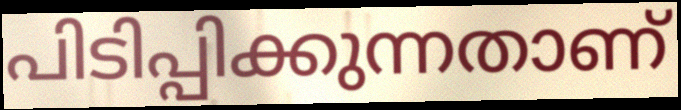
പിടിപ്പിക്കുന്നതാണ്